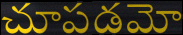
చూపడమో